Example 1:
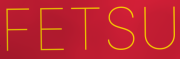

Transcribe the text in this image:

FETSU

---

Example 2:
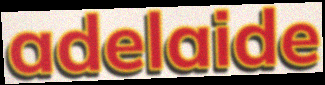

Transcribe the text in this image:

adelaide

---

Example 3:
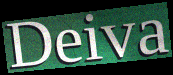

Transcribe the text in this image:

Deiva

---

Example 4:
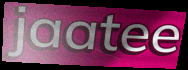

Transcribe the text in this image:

jaatee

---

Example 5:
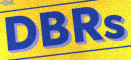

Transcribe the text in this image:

DBRs